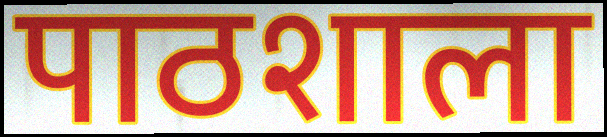
पाठशाला